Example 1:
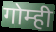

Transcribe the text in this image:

गोम्ही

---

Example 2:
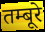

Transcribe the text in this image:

तम्बूरे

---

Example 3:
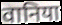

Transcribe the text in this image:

वानिया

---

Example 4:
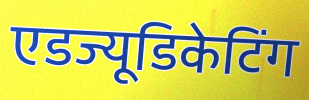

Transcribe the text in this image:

एडज्यूडिकेटिंग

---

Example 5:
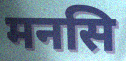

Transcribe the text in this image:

मनसि